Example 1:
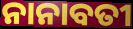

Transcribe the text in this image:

ନାନାବତୀ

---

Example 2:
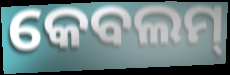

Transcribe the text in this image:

କେବଲମ୍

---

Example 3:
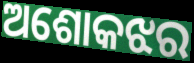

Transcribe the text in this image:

ଅଶୋକଝର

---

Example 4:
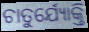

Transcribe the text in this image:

ଚାତୁର୍ଯ୍ୟୋକ୍ତି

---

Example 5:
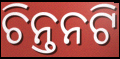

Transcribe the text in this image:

ଚିନ୍ତନଟି